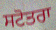
ਸਟੋਤਰਾ